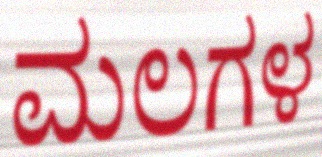
ಮಲಗಳ